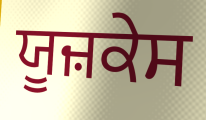
ਯੂਜ਼ਕੇਸ